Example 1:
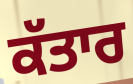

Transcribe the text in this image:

ਕੱਤਾਰ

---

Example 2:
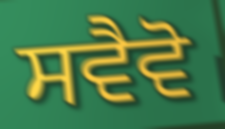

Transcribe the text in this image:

ਸਵੈਵੋ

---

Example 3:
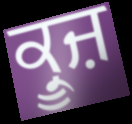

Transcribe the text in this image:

ਕ੍ਰੂਜ਼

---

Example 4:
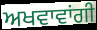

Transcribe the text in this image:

ਅਖਵਾਵਾਂਗੀ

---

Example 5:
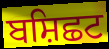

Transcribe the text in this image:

ਬਸ਼ਿਛਟ